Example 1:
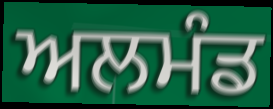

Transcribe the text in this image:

ਅਲਮੰਡ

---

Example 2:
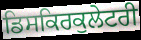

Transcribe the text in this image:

ਡਿਸਕਿਰਕੁਲੇਟਰੀ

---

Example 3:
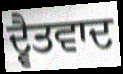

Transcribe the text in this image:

ਦ੍ਵੈਤਵਾਦ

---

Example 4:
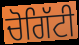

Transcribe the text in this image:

ਚੋਗਿੱਟੀ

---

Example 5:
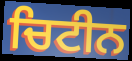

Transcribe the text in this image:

ਚਿਟੀਨ